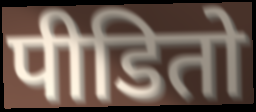
पीडितो